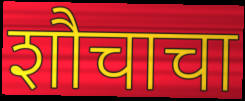
शौचाचा